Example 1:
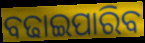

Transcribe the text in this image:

ବଢାଇପାରିବ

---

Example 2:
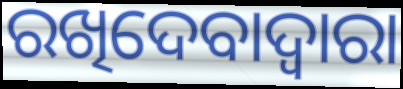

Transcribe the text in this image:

ରଖିଦେବାଦ୍ୱାରା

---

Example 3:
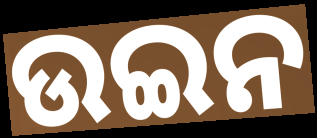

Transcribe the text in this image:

ଉଇନ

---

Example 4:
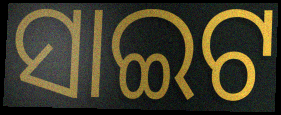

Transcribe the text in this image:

ସାଇଟ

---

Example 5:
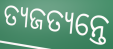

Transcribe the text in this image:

ତ୍ୟଜତ୍ୟନ୍ତେ